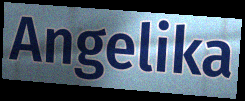
Angelika